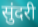
सुंदरी